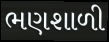
ભણશાળી